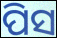
ପିସ